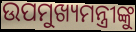
ଉପମୁଖ୍ୟମନ୍ତ୍ରୀଙ୍କୁ